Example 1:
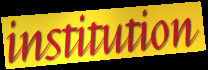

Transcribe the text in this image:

institution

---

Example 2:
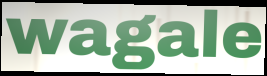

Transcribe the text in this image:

wagale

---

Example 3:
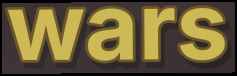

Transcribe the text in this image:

wars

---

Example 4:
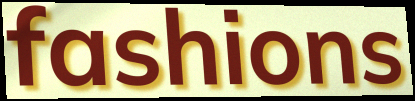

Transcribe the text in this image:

fashions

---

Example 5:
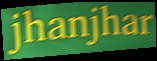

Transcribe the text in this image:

jhanjhar